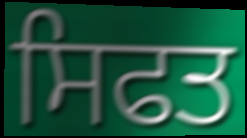
ਸਿਫਤ